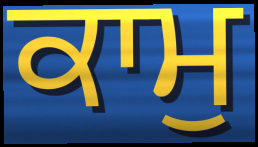
ਕਾਮੁ